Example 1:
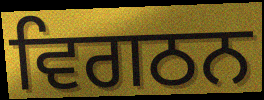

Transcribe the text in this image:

ਵਿਗਠਨ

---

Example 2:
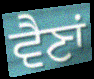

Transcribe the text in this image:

ਵੈਣਾਂ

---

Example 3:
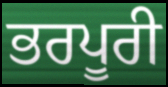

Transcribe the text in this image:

ਭਰਪੂਰੀ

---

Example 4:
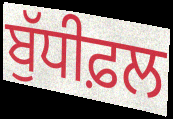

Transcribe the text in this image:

ਬੁੱਧੀਫ਼ਲ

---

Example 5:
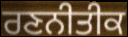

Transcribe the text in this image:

ਰਣਨੀਤੀਕ